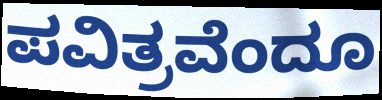
ಪವಿತ್ರವೆಂದೂ